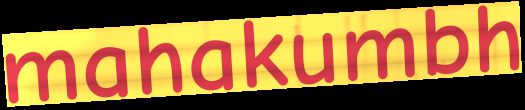
mahakumbh